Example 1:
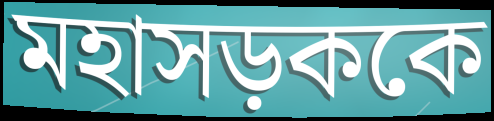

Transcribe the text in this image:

মহাসড়ককে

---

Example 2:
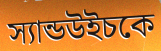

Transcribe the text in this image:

স্যান্ডউইচকে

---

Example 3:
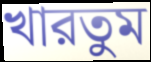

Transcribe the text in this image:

খারতুম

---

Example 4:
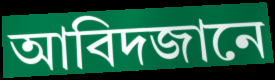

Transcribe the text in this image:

আবিদজানে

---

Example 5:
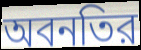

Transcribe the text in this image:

অবনতির